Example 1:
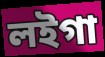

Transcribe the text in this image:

লইগা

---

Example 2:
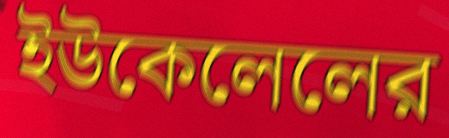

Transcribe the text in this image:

ইউকেলেলের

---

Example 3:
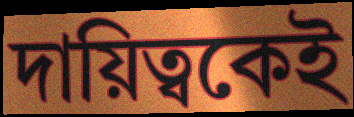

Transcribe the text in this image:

দায়িত্বকেই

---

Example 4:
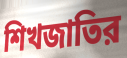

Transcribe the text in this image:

শিখজাতির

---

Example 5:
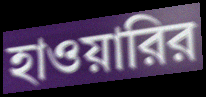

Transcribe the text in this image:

হাওয়ারির